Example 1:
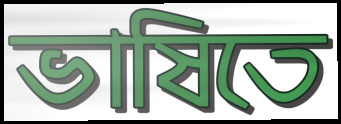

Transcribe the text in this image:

ভাষিতে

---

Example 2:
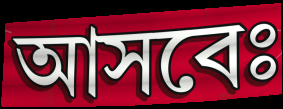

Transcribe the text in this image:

আসবেঃ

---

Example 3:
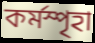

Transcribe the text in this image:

কর্মস্পৃহা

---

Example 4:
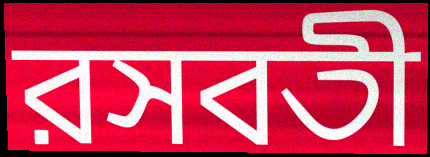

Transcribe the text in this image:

রসবতী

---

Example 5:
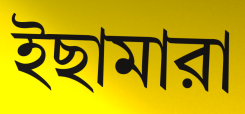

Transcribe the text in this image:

ইছামারা